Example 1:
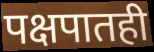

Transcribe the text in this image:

पक्षपातही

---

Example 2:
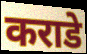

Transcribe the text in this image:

कराडे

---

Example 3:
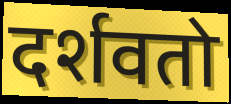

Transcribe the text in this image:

दर्शवतो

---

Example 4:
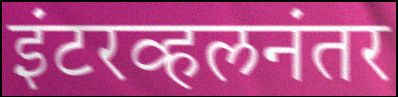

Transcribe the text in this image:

इंटरव्हलनंतर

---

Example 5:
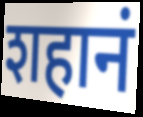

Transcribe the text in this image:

शहानं